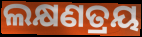
ଲକ୍ଷଣତ୍ରୟ